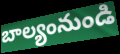
బాల్యంనుండి